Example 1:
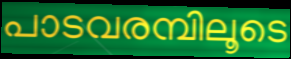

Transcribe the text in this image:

പാടവരമ്പിലൂടെ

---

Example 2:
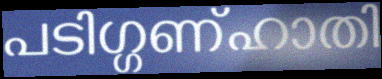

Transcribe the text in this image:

പടിഗ്ഗണ്ഹാതി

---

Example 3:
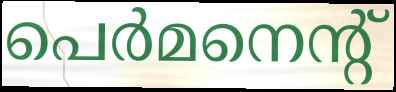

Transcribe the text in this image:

പെർമനെന്റ്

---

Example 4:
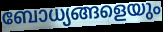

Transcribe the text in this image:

ബോധ്യങ്ങളെയും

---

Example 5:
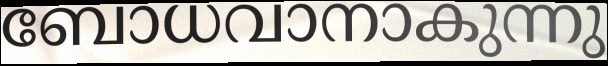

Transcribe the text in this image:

ബോധവാനാകുന്നു